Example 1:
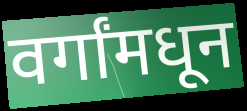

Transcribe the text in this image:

वर्गांमधून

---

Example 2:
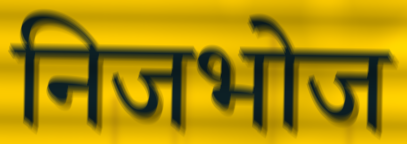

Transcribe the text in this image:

निजभोज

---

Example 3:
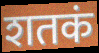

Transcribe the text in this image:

शतकं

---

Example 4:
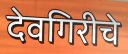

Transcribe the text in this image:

देवगिरीचे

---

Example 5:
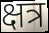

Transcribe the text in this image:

क्षत्र